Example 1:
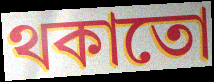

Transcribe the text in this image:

থকাতো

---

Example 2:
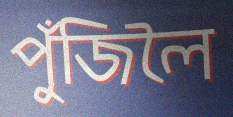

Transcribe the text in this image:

পুঁজিলৈ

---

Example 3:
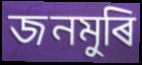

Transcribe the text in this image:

জনমুৰি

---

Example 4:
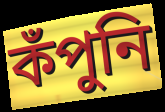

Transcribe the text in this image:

কঁপুনি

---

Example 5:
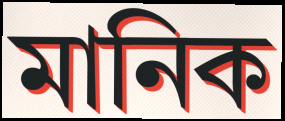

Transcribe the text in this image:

মানিক